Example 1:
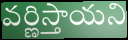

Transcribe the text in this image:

వర్ణిస్తాయని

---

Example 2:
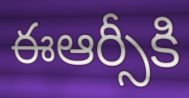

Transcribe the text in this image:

ఈఆర్సీకి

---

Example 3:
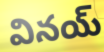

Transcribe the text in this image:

వినయ్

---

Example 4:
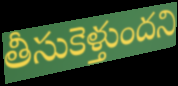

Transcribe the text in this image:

తీసుకెళ్తుందని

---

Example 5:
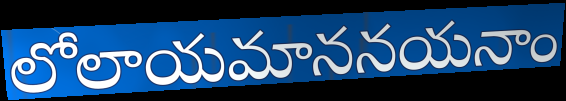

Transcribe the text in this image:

లోలాయమాననయనాం